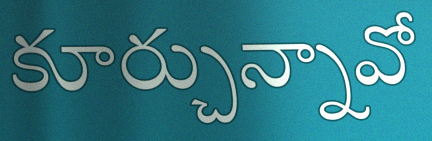
కూర్చున్నావో